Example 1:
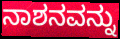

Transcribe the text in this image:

ನಾಶನವನ್ನು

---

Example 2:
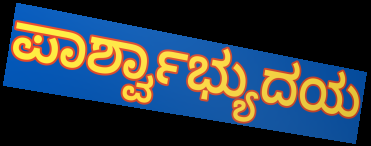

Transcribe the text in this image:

ಪಾರ್ಶ್ವಾಭ್ಯುದಯ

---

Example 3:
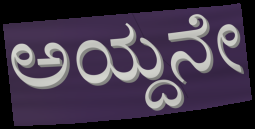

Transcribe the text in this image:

ಅಯ್ದನೇ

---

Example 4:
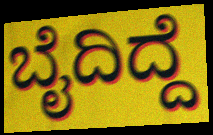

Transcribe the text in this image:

ಬೈದಿದ್ದೆ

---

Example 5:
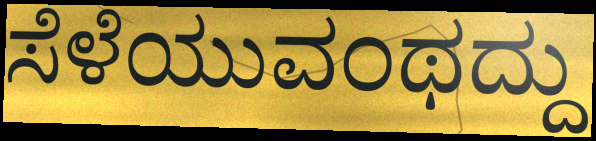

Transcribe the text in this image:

ಸೆಳೆಯುವಂಥದ್ದು